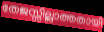
തേജസ്സില്ലാത്തതായി